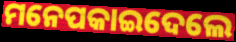
ମନେପକାଇଦେଲେ